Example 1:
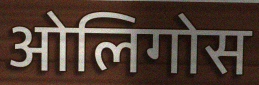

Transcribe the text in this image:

ओलिगोस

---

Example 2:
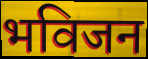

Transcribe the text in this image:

भविजन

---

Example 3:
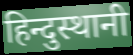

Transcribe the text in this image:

हिन्दुस्थानी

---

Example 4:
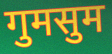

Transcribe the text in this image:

गुमसुम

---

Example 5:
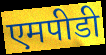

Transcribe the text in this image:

एमपीडी